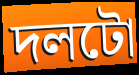
দলটো